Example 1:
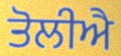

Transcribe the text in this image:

ਤੋਲੀਐ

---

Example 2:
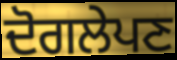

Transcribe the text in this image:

ਦੋਗਲੇਪਣ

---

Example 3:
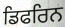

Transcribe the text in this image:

ਡਿਫਰਿਨ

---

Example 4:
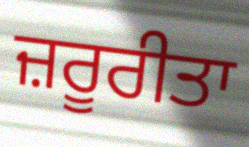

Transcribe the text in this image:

ਜ਼ਰੂਰੀਤਾ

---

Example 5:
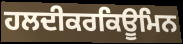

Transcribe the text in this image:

ਹਲਦੀਕਰਕਿਊਮਿਨ